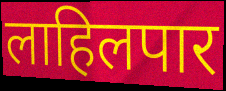
लाहिलपार